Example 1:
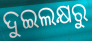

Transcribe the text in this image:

ଦୁଇଲକ୍ଷରୁ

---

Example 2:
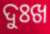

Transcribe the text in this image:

ଦୁଃଖ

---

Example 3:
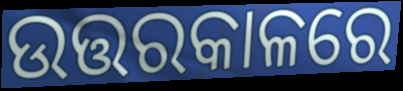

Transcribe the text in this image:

ଉତ୍ତରକାଳରେ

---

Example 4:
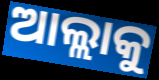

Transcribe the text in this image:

ଆଲ୍ଲାକୁ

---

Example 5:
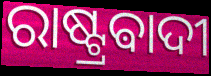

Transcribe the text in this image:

ରାଷ୍ଟ୍ରଵାଦୀ